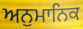
ਅਨੁਮਾਨਿਕ